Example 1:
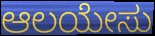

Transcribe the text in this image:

ಆಲಯೇಸು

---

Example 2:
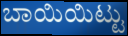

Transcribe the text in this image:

ಬಾಯಿಯಿಟ್ಟು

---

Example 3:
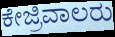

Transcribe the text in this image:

ಕೇಜ್ರಿವಾಲರು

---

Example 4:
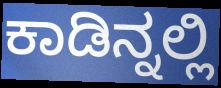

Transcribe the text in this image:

ಕಾಡಿನ್ನಲ್ಲಿ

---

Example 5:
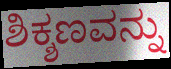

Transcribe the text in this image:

ಶಿಕ್ಶಣವನ್ನು